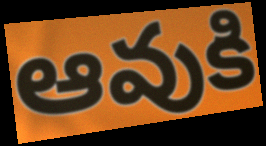
ఆవుకి